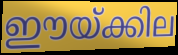
ഈയ്ക്കില